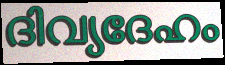
ദിവ്യദേഹം